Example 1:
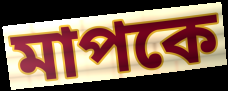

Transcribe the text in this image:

মাপকে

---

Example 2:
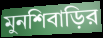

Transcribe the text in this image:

মুনশিবাড়ির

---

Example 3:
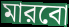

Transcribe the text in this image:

মারবো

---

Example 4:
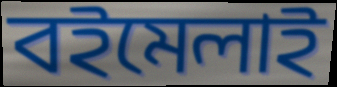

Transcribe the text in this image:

বইমেলাই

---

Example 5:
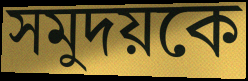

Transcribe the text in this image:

সমুদয়কে